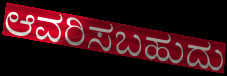
ಆವರಿಸಬಹುದು